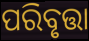
ପରିବୃତ୍ତା